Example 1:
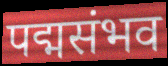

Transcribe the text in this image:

पद्मसंभव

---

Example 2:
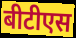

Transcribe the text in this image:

बीटीएस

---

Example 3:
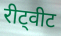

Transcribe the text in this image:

रीट्वीट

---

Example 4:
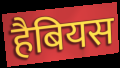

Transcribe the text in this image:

हैबियस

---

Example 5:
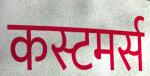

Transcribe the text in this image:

कस्टमर्स